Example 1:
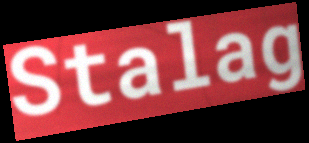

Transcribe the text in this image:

Stalag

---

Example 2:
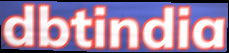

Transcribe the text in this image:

dbtindia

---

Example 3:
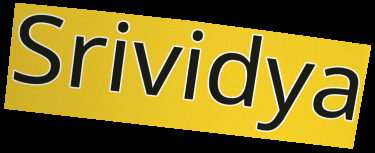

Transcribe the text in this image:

Srividya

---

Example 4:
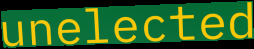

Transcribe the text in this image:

unelected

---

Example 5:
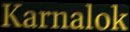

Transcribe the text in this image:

Karnalok